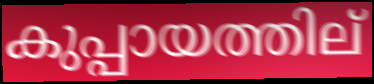
കുപ്പായത്തില്